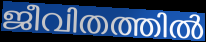
ജീവിതത്തിൽ